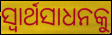
ସ୍ଵାର୍ଥସାଧନକୁ